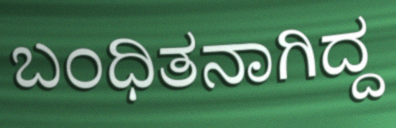
ಬಂಧಿತನಾಗಿದ್ದ